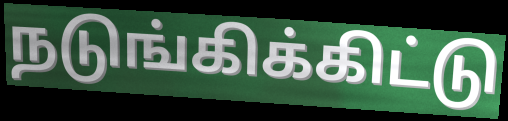
நடுங்கிக்கிட்டு